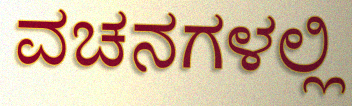
ವಚನಗಳಲ್ಲಿ